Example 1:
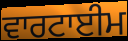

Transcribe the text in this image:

ਵਾਰਟਾਈਮ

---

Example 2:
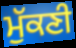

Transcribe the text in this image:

ਮੁੱਕਣੀ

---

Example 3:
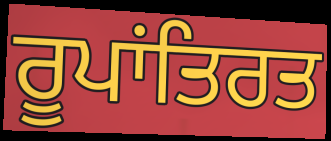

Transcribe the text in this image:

ਰੂਪਾਂਤਿਰਤ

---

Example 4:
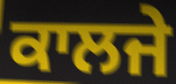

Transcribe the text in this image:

ਕਾਲਜੇ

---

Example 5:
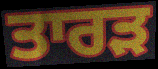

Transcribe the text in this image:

ਤਾਰੜ